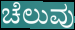
ಚೆಲುವು